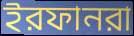
ইরফানরা